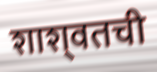
शाश्वतची